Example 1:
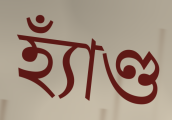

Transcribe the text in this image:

হ্যাঁণ্ড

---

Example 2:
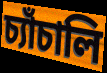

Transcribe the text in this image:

চ্যাঁচালি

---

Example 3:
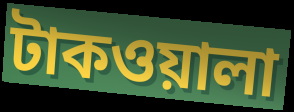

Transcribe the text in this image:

টাকওয়ালা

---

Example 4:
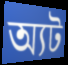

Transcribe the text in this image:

অ্যট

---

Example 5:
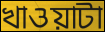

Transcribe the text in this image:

খাওয়াটা